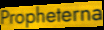
Propheterna